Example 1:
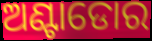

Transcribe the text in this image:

ଅଣ୍ଟାଡୋର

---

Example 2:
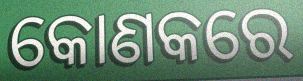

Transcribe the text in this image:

କୋଣକରେ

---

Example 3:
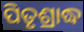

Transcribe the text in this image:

ପିତୃଶ୍ରାଦ୍ଧ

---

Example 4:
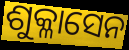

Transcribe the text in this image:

ଶୁକ୍ଳାସେନ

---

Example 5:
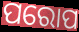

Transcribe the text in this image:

ପରୋପ